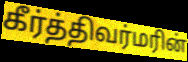
கீர்த்திவர்மரின்